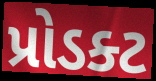
પ્રોડક્ટ